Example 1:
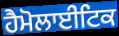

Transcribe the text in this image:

ਹੈਮੋਲਾਈਟਿਕ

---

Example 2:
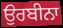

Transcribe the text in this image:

ਉਰਬੀਨਾ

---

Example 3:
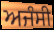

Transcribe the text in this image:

ਅਜੰਸੀ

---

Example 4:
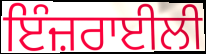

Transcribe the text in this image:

ਇੰਜ਼ਰਾਈਲੀ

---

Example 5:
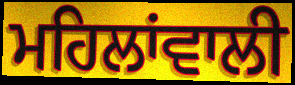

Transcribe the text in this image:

ਮਹਿਲਾਂਵਾਲੀ